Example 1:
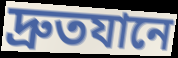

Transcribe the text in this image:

দ্রুতযানে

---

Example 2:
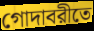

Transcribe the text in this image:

গোদাবরীতে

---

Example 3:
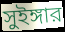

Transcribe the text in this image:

সুইঙ্গার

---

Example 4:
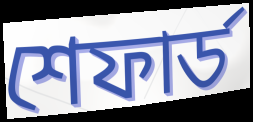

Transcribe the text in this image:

শেফার্ড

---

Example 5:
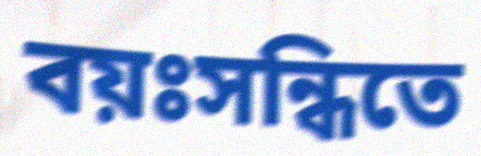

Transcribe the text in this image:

বয়ঃসন্ধিতে